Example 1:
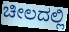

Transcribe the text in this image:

ಚೀಲದಲ್ಲಿ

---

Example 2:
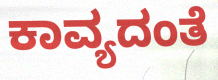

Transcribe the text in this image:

ಕಾವ್ಯದಂತೆ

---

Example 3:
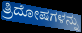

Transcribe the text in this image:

ತ್ರಿದೋಷಗಳನ್ನು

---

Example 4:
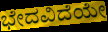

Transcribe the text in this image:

ಭೇದವಿದೆಯೇ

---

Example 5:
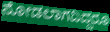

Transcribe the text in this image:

ನೋಡಲಾಗದಿದ್ದರೂ